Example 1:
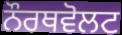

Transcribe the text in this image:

ਨੌਰਥਵੋਲਟ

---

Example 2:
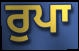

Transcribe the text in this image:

ਰੁਪਾ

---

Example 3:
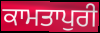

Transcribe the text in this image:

ਕਾਮਤਾਪੁਰੀ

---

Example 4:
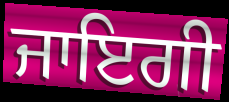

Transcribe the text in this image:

ਜਾਇਗੀ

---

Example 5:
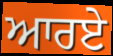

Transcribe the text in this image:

ਆਰਏ